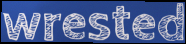
wrested